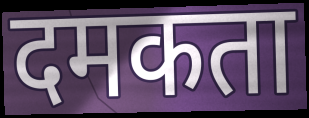
दमकता